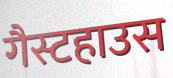
गैस्टहाउस